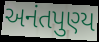
અનંતપુણ્ય